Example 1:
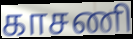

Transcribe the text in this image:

காசணி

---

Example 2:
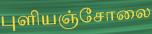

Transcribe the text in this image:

புளியஞ்சோலை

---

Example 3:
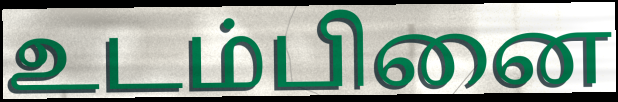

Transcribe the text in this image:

உடம்பினை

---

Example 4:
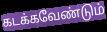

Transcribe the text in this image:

கடக்கவேண்டும்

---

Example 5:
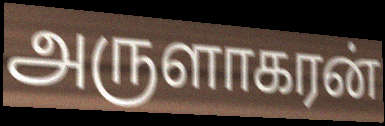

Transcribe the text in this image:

அருளாகரன்